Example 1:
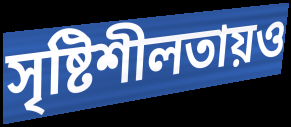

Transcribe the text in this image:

সৃষ্টিশীলতায়ও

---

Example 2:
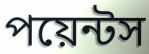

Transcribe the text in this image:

পয়েন্টস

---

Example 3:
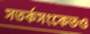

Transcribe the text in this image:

সতর্কসংকেতও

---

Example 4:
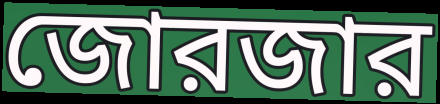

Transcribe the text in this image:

জোরজার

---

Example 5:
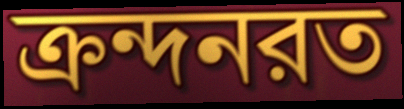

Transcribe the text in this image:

ক্রন্দনরত